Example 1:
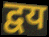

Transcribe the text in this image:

द्वय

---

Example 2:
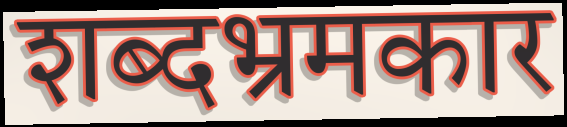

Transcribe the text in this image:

शब्दभ्रमकार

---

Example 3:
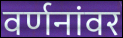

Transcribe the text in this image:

वर्णनांवर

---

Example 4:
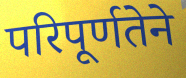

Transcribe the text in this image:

परिपूर्णतेने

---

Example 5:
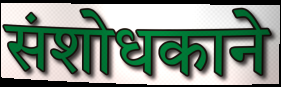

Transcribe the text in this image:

संशोधकाने